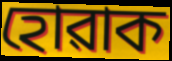
হোৱাক